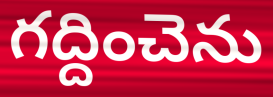
గద్దించెను